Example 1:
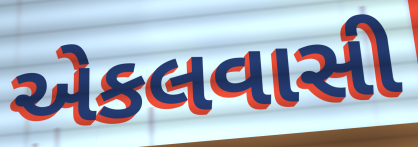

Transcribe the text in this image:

એકલવાસી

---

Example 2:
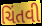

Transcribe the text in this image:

ચિંતવી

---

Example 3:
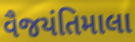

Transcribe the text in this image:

વૈજયંતિમાલા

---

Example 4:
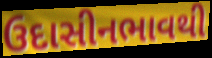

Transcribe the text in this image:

ઉદાસીનભાવથી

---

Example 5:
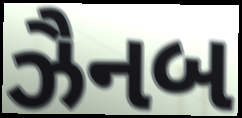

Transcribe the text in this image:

ઝૈનબ